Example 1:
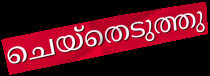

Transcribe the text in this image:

ചെയ്തെടുത്തു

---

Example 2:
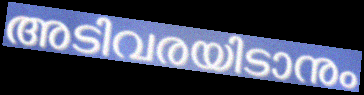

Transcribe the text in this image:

അടിവരയിടാനും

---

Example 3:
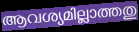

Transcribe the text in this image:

ആവശ്യമില്ലാത്തതു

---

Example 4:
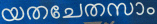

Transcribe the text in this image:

യതചേതസാം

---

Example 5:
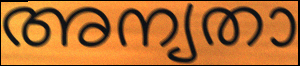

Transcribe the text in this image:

അന്യതാ